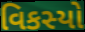
વિકસ્યો